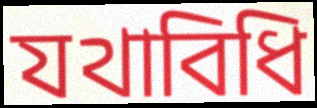
যথাবিধি